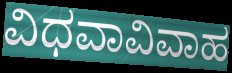
ವಿಧವಾವಿವಾಹ